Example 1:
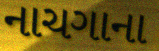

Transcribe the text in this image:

નાચગાના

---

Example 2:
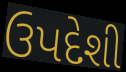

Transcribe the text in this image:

ઉપદેશી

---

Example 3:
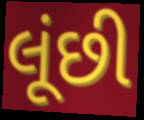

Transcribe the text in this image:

લૂંછી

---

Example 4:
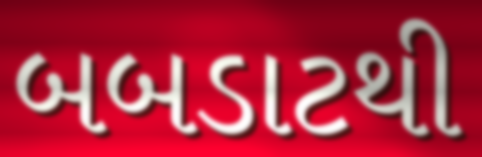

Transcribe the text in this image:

બબડાટથી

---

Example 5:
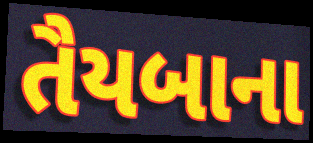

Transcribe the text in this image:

તૈયબાના